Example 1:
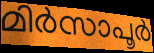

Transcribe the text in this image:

മിർസാപൂർ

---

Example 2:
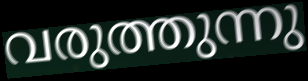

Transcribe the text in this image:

വരുത്തുന്നു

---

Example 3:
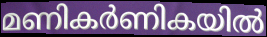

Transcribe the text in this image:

മണികർണികയിൽ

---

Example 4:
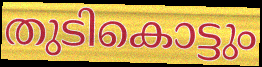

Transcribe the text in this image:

തുടികൊട്ടും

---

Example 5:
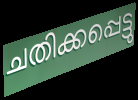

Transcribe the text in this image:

ചതിക്കപ്പെട്ടു